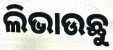
ଲିଭାଉଛୁ